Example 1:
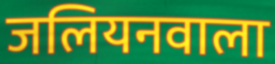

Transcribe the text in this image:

जलियनवाला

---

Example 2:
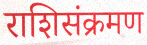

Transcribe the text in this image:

राशिसंक्रमण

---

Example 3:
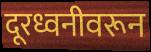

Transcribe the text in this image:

दूरध्वनीवरून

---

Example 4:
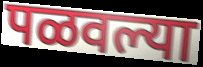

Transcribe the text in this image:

पळवल्या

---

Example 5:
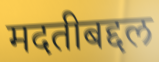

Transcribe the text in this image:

मदतीबद्दल